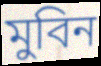
মুবিন